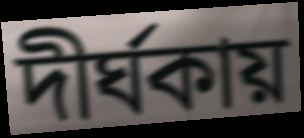
দীর্ঘকায়